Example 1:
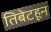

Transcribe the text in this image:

तिबेटहून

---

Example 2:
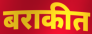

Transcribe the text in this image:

बराकीत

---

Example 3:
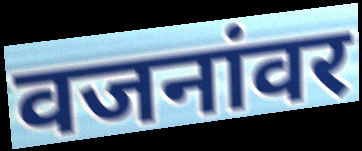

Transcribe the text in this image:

वजनांवर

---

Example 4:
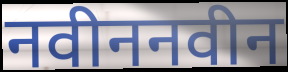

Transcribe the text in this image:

नवीननवीन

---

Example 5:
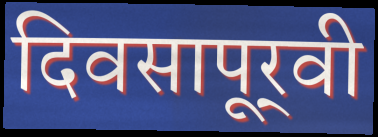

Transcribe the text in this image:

दिवसापूर्वी